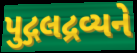
પુદ્ગલદ્રવ્યને